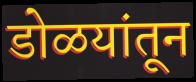
डोळयांतून